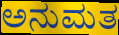
ಅನುಮತ